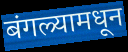
बंगल्यामधून